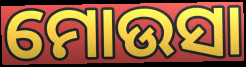
ମୋଉସା